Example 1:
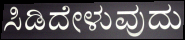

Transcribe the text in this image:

ಸಿಡಿದೇಳುವುದು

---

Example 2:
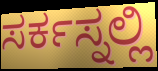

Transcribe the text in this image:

ಸರ್ಕಸ್ನಲ್ಲಿ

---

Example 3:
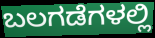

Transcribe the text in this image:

ಬಲಗಡೆಗಳಲ್ಲಿ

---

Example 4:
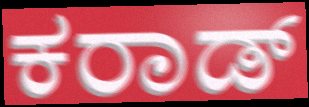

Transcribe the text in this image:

ಕರಾಡ್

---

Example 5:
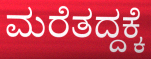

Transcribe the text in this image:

ಮರೆತದ್ದಕ್ಕೆ